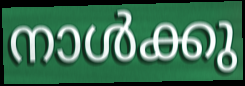
നാൾക്കു